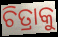
ଚିତ୍ରାକୁ